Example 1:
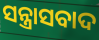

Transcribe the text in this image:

ସନ୍ତ୍ରାସବାଦ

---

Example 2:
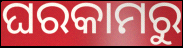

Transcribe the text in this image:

ଘରକାମରୁ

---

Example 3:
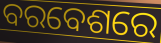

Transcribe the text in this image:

ବରବେଶରେ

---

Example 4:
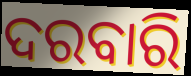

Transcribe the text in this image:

ଦରବାରି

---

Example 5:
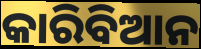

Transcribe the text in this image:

କାରିବିଆନ